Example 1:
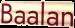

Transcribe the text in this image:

Baalan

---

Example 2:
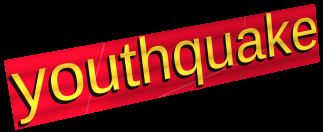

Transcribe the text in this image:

youthquake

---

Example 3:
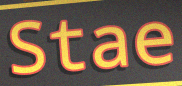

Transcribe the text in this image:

Stae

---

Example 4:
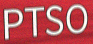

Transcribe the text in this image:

PTSO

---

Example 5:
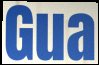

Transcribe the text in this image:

Gua